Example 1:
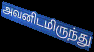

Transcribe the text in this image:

அவனிடமிருந்து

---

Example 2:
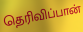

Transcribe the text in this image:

தெரிவிப்பான்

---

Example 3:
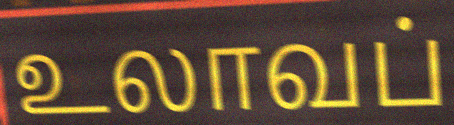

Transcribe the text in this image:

உலாவப்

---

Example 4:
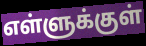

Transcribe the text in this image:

எள்ளுக்குள்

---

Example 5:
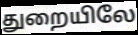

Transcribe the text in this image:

துறையிலே